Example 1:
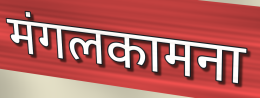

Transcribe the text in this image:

मंगलकामना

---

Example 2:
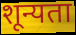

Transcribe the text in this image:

शून्‍यता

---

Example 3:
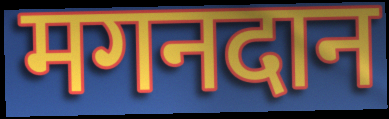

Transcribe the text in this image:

मगनदान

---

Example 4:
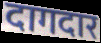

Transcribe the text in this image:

दागदार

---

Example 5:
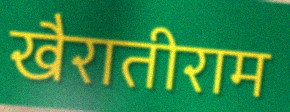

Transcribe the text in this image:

खैरातीराम